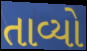
તાવ્યો